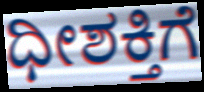
ಧೀಶಕ್ತಿಗೆ